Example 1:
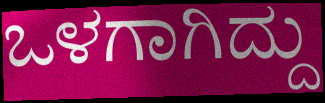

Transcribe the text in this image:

ಒಳಗಾಗಿದ್ದು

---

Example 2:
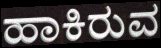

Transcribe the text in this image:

ಹಾಕಿರುವ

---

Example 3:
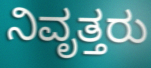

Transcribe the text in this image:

ನಿವೃತ್ತರು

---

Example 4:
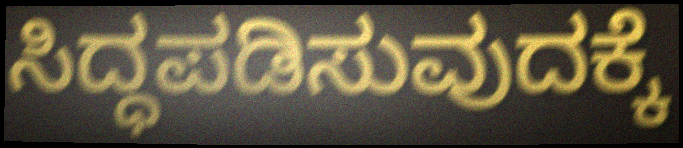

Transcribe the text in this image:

ಸಿದ್ಧಪಡಿಸುವುದಕ್ಕೆ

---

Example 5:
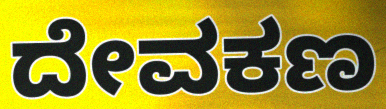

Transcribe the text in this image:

ದೇವಕಣ